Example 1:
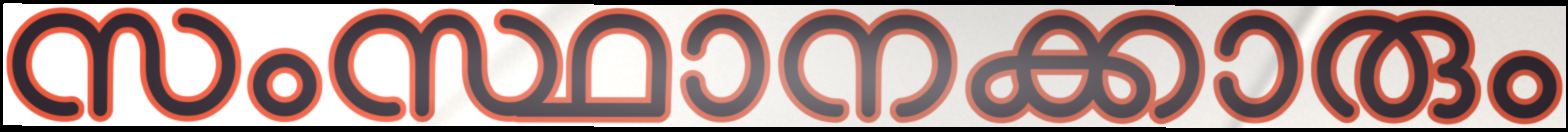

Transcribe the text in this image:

സംസ്ഥാനക്കാരും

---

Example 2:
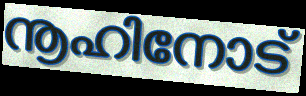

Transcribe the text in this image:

നൂഹിനോട്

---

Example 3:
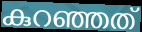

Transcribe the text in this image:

കുറഞ്ഞത്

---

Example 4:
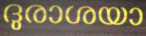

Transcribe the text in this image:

ദുരാശയാ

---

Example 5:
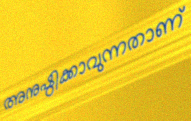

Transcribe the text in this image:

അനുഷ്ഠിക്കാവുന്നതാണ്